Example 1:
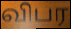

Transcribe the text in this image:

விபர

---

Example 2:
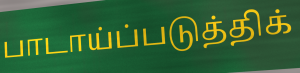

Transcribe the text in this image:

பாடாய்ப்படுத்திக்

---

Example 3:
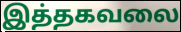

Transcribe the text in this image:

இத்தகவலை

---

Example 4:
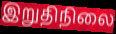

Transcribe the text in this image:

இறுதிநிலை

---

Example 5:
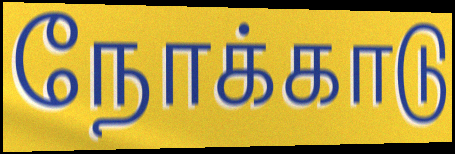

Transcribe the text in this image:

நோக்காடு